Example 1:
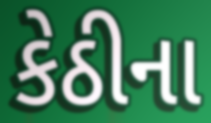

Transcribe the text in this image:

કેઠીના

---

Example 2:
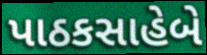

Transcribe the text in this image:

પાઠકસાહેબે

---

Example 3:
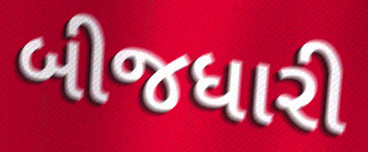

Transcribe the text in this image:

બીજધારી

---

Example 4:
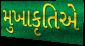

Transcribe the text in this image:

મુખાકૃતિએ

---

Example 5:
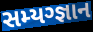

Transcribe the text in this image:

સમ્યગ્જ્ઞાન